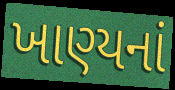
ખાણ્યનાં